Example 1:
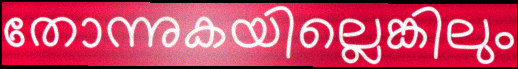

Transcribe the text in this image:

തോന്നുകയില്ലെങ്കിലും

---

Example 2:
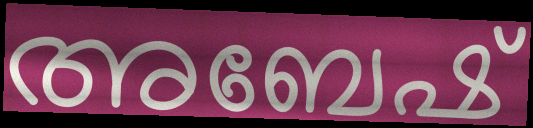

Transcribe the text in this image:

അബേഷ്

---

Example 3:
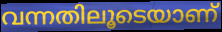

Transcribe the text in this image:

വന്നതിലൂടെയാണ്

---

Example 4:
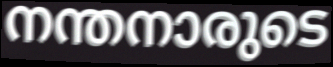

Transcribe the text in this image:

നന്തനാരുടെ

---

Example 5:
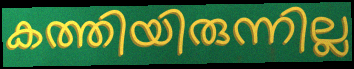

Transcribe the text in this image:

കത്തിയിരുന്നില്ല